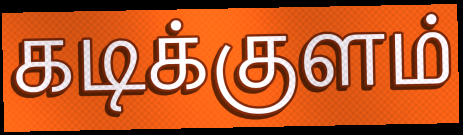
கடிக்குளம்